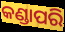
କଣ୍ଡାପରି